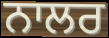
ਨਾਲਰ